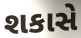
શકાસે